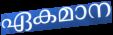
ഏകമാന